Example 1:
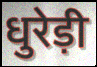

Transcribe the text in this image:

धुरेड़ी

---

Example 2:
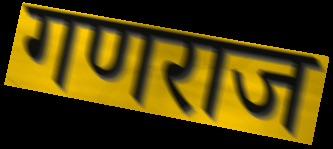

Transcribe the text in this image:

गणराज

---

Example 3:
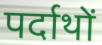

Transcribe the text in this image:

पर्दाथों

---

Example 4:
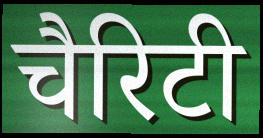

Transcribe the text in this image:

चैरिटी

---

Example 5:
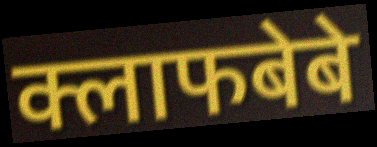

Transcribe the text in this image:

क्लाफबेबे